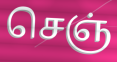
செஞ்